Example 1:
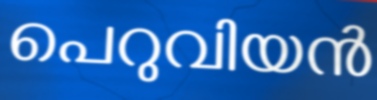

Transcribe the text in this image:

പെറുവിയൻ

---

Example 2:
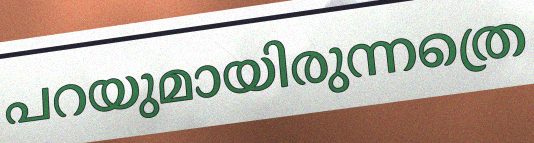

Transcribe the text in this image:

പറയുമായിരുന്നത്രെ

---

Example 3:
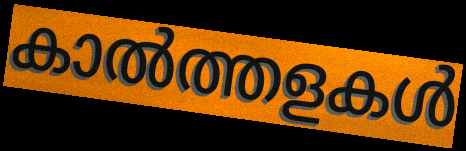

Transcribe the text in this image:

കാൽത്തളകൾ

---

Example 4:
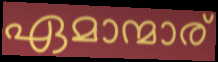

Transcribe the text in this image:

ഏമാന്മാര്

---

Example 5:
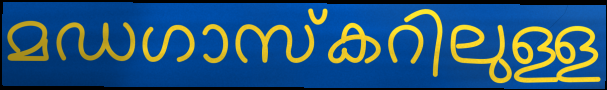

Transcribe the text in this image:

മഡഗാസ്കറിലുള്ള